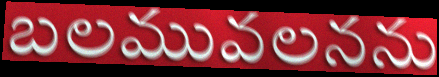
బలమువలనను